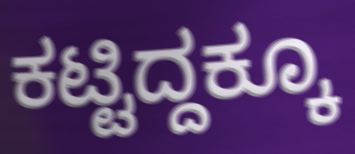
ಕಟ್ಟಿದ್ದಕ್ಕೂ